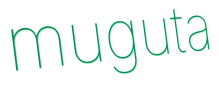
muguta